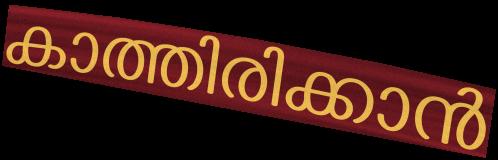
കാത്തിരിക്കാൻ